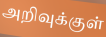
அறிவுக்குள்